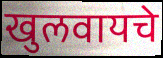
खुलवायचे